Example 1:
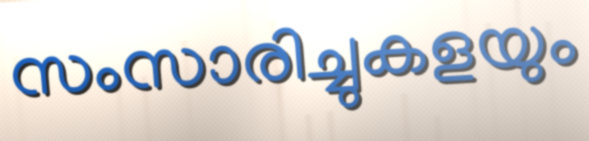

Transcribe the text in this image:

സംസാരിച്ചുകളയും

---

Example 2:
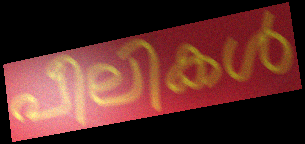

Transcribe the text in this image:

പീലികൾ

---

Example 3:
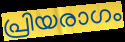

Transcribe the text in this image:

പ്രിയരാഗം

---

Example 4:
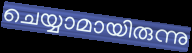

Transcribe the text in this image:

ചെയ്യാമായിരുന്നു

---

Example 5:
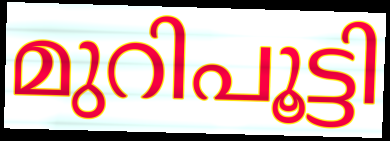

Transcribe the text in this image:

മുറിപൂട്ടി